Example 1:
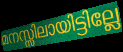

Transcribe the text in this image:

മനസ്സിലായിട്ടില്ലേ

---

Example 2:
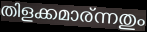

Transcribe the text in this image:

തിളക്കമാര്ന്നതും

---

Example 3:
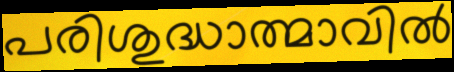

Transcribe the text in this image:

പരിശുദ്ധാത്മാവിൽ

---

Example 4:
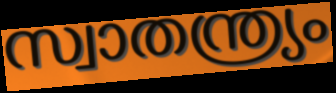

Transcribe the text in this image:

സ്വാതന്ത്ര്യം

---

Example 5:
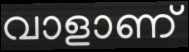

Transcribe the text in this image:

വാളാണ്